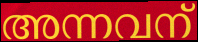
അന്നവന്